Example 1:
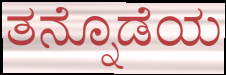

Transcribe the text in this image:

ತನ್ನೊಡೆಯ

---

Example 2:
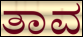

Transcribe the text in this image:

ತಾವ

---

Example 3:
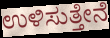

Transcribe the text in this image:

ಉಳಿಸುತ್ತೇನೆ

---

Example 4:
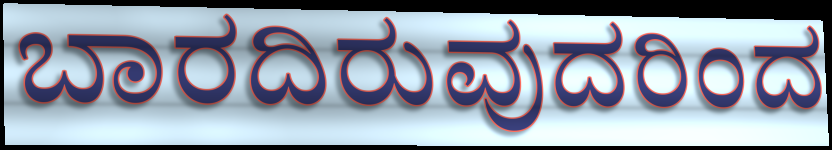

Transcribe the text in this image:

ಬಾರದಿರುವುದರಿಂದ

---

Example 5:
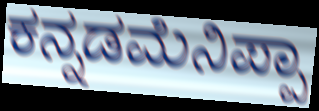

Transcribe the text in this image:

ಕನ್ನಡಮೆನಿಪ್ಪಾ